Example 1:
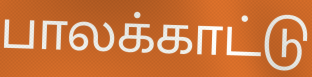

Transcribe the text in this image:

பாலக்காட்டு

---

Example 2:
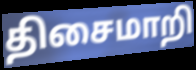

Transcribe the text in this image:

திசைமாறி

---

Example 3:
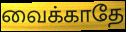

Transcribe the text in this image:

வைக்காதே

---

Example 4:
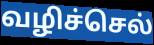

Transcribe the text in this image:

வழிச்செல்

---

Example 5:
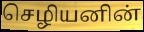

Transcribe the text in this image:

செழியனின்